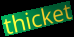
thicket